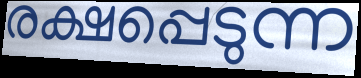
രക്ഷപ്പെടുന്ന